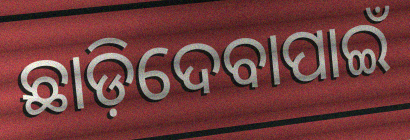
ଛାଡ଼ିଦେବାପାଇଁ